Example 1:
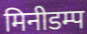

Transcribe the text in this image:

मिनीडम्प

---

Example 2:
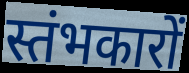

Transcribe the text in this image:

स्तंभकारों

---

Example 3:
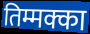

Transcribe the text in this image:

तिम्मक्का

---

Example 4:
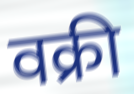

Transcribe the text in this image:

वक्री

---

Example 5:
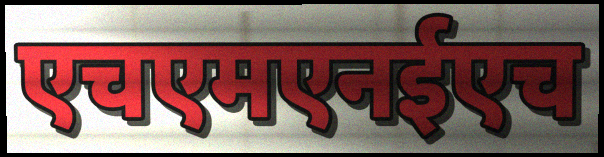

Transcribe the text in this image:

एचएमएनईएच